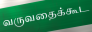
வருவதைக்கூட